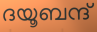
ദയൂബന്ദ്